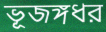
ভূজঙ্গধর